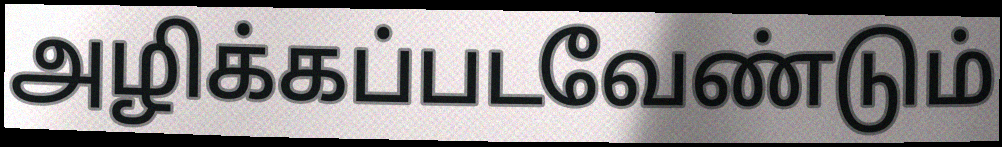
அழிக்கப்படவேண்டும்